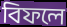
বিফলে